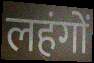
लहंगों